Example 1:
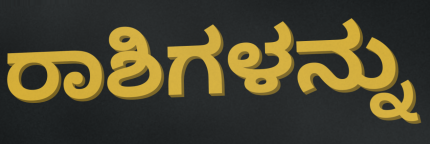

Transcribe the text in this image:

ರಾಶಿಗಳನ್ನು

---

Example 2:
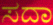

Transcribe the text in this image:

ಸದಾ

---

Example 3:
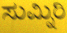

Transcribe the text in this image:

ಸುಮ್ನಿರಿ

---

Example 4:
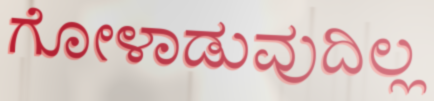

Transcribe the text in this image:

ಗೋಳಾಡುವುದಿಲ್ಲ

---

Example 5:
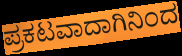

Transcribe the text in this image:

ಪ್ರಕಟವಾದಾಗಿನಿಂದ